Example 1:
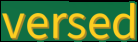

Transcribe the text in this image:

versed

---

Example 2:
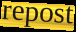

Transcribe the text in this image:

repost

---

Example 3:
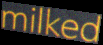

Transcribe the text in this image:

milked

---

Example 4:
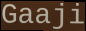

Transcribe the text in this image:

Gaaji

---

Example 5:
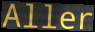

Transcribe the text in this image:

Aller